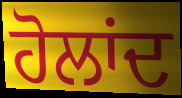
ਹੋਲਾਂਦ